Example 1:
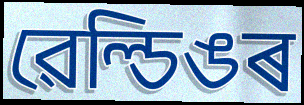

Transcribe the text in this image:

ৱেল্ডিঙৰ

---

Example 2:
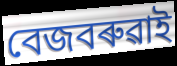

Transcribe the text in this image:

বেজবৰুৱাই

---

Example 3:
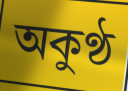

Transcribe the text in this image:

অকুণ্ঠ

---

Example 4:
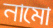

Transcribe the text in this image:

নামো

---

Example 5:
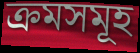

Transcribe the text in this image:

ক্ৰমসমূহ